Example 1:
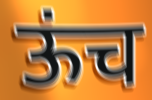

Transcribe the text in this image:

ऊंच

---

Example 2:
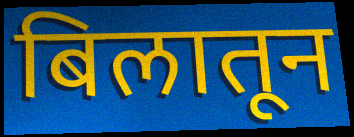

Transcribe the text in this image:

बिलातून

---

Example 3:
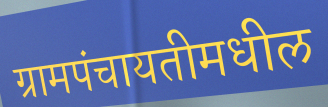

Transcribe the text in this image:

ग्रामपंचायतीमधील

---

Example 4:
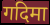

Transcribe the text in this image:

गदिमा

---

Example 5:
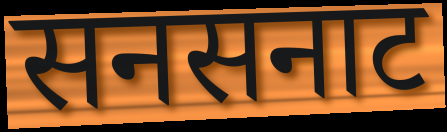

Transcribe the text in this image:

सनसनाट